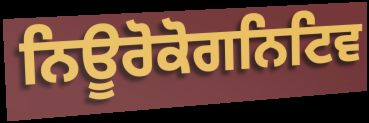
ਨਿਊਰੋਕੋਗਨਿਟਿਵ